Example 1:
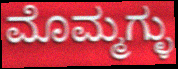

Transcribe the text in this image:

ಮೊಮ್ಮಗ್ಳು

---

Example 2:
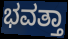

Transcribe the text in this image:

ಭವತ್ತಾ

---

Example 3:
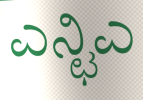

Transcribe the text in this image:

ಎನ್ಟಿಎ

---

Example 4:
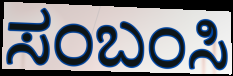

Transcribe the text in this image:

ಸಂಬಂಸಿ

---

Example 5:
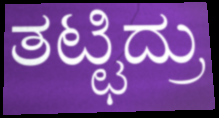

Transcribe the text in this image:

ತಟ್ಟಿದ್ರು